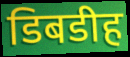
डिबडीह